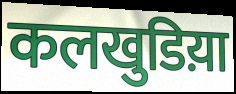
कलखुडिय़ा